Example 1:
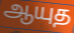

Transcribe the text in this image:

ஆயுத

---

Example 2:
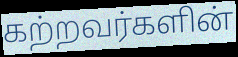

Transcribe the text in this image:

கற்றவர்களின்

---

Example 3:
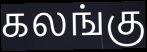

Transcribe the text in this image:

கலங்கு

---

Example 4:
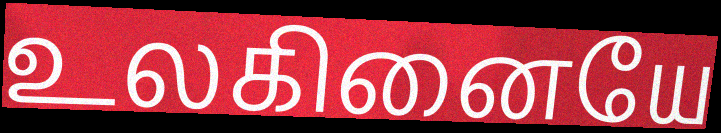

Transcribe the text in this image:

உலகினையே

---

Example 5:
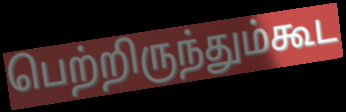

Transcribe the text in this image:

பெற்றிருந்தும்கூட